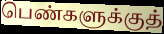
பெண்களுக்குத்